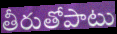
తీరుతోపాటు